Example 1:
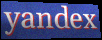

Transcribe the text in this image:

yandex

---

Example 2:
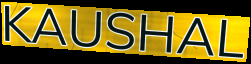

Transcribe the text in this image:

KAUSHAL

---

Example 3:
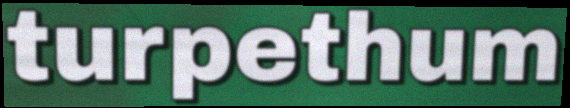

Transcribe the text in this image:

turpethum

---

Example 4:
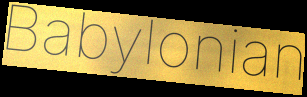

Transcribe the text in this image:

Babylonian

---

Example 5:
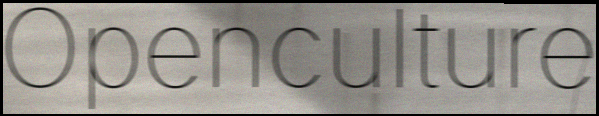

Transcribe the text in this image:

Openculture